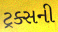
ટ્રક્સની